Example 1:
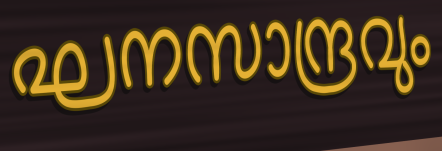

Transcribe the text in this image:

ഘനസാന്ദ്രവും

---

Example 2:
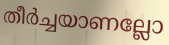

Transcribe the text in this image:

തീർച്ചയാണല്ലോ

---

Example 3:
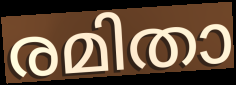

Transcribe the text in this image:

രമിതാ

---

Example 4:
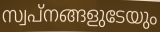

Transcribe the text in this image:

സ്വപ്നങ്ങളുടേയും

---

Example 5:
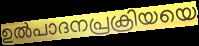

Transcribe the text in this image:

ഉൽപാദനപ്രക്രിയയെ